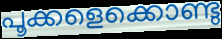
പൂക്കളെക്കൊണ്ടു